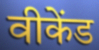
वीकेंड